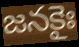
జనకైః